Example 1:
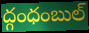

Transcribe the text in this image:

ద్గంధంబుల్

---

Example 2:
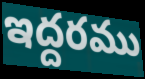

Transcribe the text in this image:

ఇద్దరము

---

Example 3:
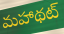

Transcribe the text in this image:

మహాథట్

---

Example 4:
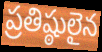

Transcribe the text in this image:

ప్రతిష్ఠులైన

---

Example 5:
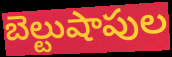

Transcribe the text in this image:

బెల్టుషాపుల